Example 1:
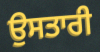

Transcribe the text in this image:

ਉਸਤਾਰੀ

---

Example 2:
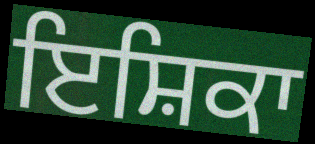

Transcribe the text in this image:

ਇਸ਼ਿਕਾ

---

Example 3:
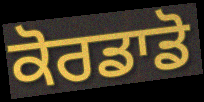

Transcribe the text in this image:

ਕੋਰਡਾਡੋ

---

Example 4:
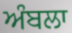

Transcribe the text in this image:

ਅੰਬਲਾ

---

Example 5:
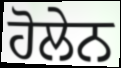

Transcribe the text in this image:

ਹੋਲੇਨ